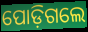
ପୋଡ଼ିଗଲେ